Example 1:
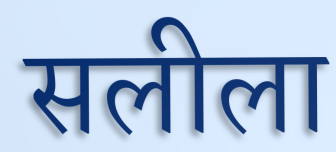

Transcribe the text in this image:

सलीला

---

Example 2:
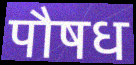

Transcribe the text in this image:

पौषध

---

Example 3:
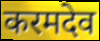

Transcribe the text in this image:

करमदेव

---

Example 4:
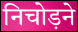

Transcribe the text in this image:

निचोड़ने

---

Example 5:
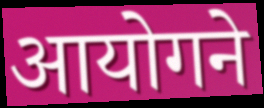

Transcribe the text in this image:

आयोगने